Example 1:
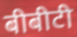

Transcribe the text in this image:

बीबीटी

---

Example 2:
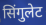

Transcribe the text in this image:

सिंगुलेट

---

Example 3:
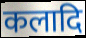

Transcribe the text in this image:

कलादि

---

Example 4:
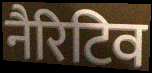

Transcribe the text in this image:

नैरिटिव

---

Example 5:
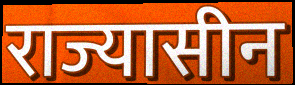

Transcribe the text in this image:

राज्यासीन